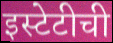
इस्टेटीची